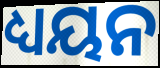
ଧ୍ୟୟନ